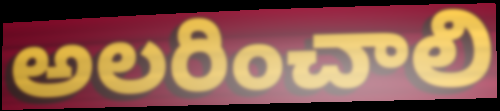
అలరించాలి